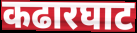
कढारघाट